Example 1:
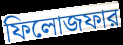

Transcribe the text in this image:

ফিলোজফার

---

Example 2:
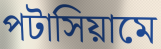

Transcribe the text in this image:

পটাসিয়ামে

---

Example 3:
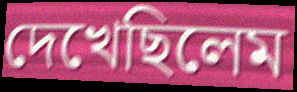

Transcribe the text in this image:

দেখেছিলেম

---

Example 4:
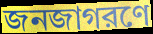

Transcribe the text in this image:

জনজাগরণে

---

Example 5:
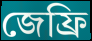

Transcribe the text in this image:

জেফ্রি